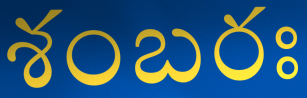
శంబరః